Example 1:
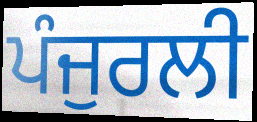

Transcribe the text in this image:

ਪੰਜੁਰਲੀ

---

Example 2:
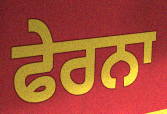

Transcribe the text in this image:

ਫੇਰਨਾ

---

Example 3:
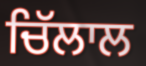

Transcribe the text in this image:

ਚਿੱਲਾਲ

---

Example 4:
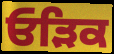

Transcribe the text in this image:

ਓੜਿਕ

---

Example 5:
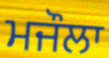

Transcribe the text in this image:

ਮਜੌਲਾ